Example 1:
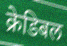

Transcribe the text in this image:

क्रेडिबल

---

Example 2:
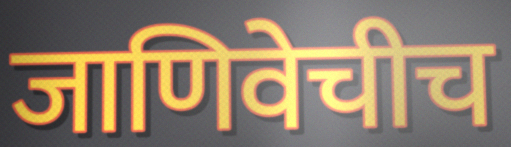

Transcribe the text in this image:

जाणिवेचीच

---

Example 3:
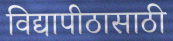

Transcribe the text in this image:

विद्यापीठासाठी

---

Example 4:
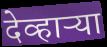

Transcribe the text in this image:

देव्हाऱ्या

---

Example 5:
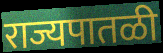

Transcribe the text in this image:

राज्यपातळी